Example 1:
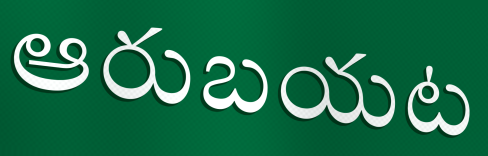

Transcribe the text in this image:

ఆరుబయట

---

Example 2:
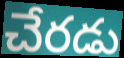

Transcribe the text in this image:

చేరడు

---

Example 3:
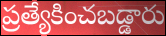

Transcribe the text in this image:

ప్రత్యేకించబడ్డారు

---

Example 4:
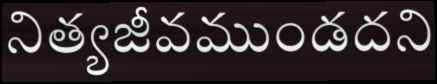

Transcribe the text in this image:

నిత్యజీవముండదని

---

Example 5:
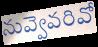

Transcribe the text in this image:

నువ్వెవరివో